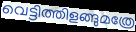
വെട്ടിത്തിളങ്ങുമത്രേ